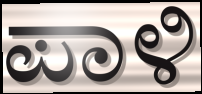
ಪಾಳಿ